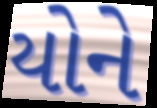
યોને